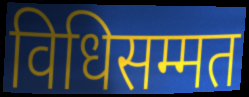
विधिसम्मत